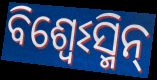
ବିଶ୍ଵେଽସ୍ମିନ୍